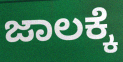
ಜಾಲಕ್ಕೆ